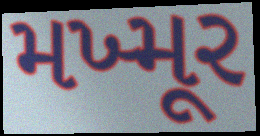
મખ્મૂર